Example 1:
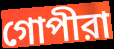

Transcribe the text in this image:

গোপীরা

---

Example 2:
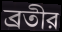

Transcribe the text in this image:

ব্রতীর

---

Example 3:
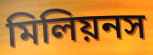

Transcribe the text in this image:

মিলিয়নস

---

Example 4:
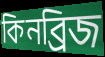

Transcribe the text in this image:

কিনব্রিজ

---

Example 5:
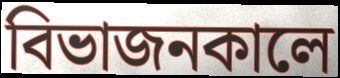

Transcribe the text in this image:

বিভাজনকালে